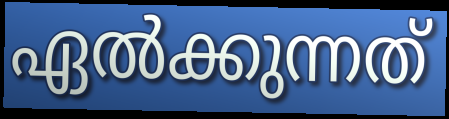
ഏൽക്കുന്നത്